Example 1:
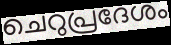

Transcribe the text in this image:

ചെറുപ്രദേശം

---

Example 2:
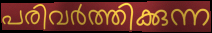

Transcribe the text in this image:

പരിവർത്തിക്കുന്ന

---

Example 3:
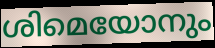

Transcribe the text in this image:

ശിമെയോനും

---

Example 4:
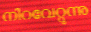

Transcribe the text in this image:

നിറവേറ്റുന്നു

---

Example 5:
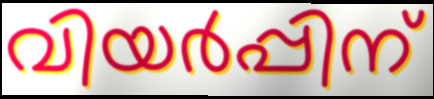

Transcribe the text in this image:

വിയർപ്പിന്